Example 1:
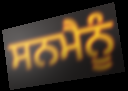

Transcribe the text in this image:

ਸਨਮੈਨੂੰ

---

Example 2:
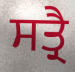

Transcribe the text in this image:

ਸਤ੍ਰੈ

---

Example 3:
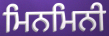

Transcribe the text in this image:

ਮਿਨਮਿਨੀ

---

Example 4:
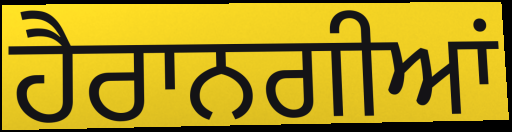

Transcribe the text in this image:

ਹੈਰਾਨਗੀਆਂ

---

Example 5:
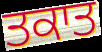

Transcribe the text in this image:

ਤਕਾਤ